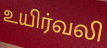
உயிர்வலி